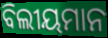
ବିଲୀୟମାନ